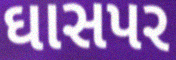
ઘાસપર